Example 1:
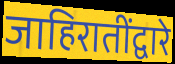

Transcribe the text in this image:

जाहिरातींद्वारे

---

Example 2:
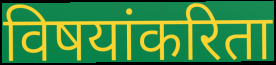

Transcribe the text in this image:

विषयांकरिता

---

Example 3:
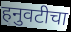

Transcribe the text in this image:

हनुवटीचा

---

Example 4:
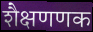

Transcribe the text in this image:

शैक्षणणक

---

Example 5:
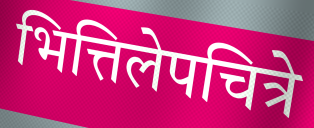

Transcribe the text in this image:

भित्तिलेपचित्रे